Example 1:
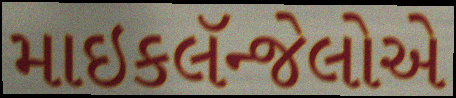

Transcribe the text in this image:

માઇકલૅન્જેલોએ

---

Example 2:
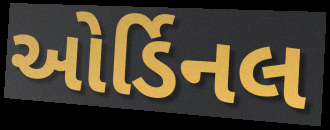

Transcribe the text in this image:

ઓર્ડિનલ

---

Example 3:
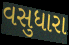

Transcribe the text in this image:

વસુધારા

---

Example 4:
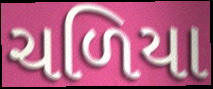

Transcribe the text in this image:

ચળિયા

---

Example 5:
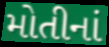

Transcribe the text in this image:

મોતીનાં